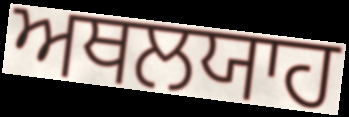
ਅਥਲਯਾਹ